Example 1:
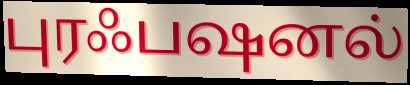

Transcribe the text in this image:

புரஃபஷனல்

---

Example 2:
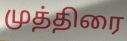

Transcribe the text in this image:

முத்திரை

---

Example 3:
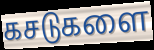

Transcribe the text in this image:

கசடுகளை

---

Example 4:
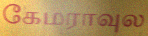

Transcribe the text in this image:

கேமராவுல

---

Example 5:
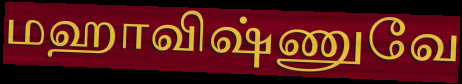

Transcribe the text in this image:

மஹாவிஷ்ணுவே